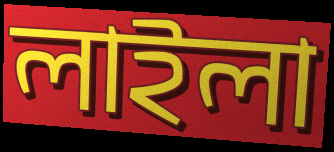
লাইলা